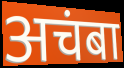
अचंबा